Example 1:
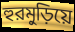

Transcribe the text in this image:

হুরমুড়িয়ে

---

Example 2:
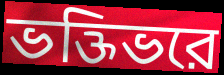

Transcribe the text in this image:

ভক্তিভরে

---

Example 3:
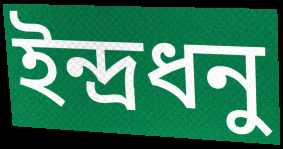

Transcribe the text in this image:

ইন্দ্রধনু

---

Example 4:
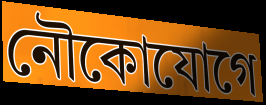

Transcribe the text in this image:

নৌকোযোগে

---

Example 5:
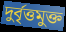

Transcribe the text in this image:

দুর্বৃত্তমুক্ত